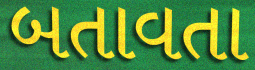
બતાવતા